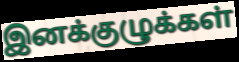
இனக்குழுக்கள்